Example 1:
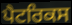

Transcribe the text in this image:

ਪੈਟਰਿਕਸ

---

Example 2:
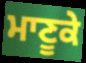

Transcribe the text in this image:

ਮਾਣੂਕੇ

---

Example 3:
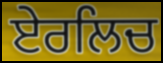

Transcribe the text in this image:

ਏਰਲਿਚ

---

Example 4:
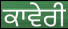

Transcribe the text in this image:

ਕਾਵੇਰੀ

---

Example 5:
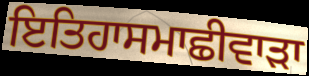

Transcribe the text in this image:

ਇਤਿਹਾਸਮਾਛੀਵਾੜਾ